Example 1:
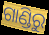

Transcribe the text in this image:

ଗାଣ୍ଡିରୁ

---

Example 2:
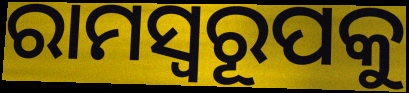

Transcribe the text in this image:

ରାମସ୍ୱରୂପକୁ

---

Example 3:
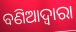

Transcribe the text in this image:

ବଣିଆଦ୍ୱାରା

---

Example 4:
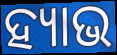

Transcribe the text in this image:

ହ୍ୟାଭ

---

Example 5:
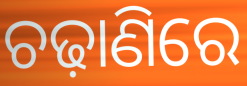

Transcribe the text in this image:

ଚଢ଼ାଣିରେ